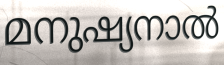
മനുഷ്യനാൽ